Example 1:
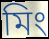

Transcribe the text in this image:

মিং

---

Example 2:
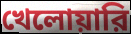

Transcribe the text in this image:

খেলোয়ারি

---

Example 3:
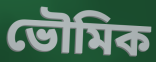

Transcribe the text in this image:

ভৌমিক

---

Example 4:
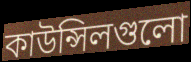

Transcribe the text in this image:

কাউন্সিলগুলো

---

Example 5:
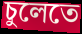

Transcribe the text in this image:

চুলেতে